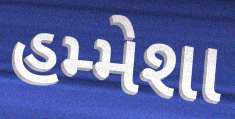
હમ્મેશા